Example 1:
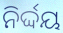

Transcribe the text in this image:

ନିର୍ଦ୍ଦୟ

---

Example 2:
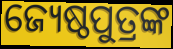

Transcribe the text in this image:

ଜ୍ୟେଷ୍ଠପୁତ୍ରଙ୍କ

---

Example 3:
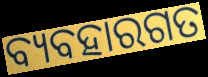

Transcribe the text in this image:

ବ୍ୟବହାରଗତ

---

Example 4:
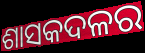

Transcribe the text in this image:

ଶାସକଦଳର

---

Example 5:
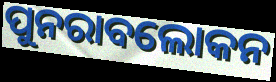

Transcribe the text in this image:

ପୁନରାବଲୋକନ